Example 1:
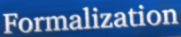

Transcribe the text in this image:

Formalization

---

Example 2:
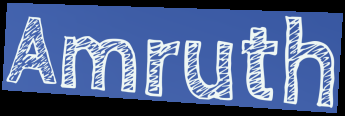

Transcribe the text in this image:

Amruth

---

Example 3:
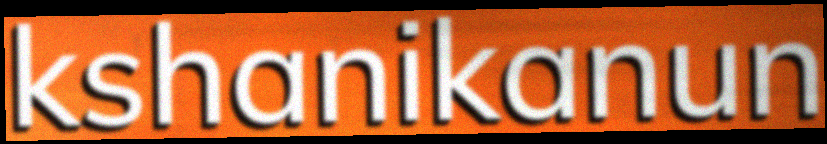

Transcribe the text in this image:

kshanikanun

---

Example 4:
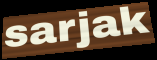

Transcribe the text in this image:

sarjak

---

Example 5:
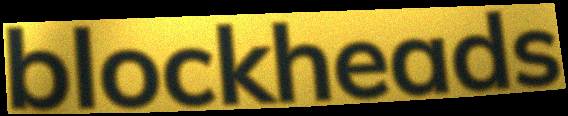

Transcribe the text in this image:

blockheads